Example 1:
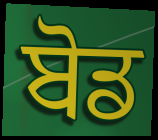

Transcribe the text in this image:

ਬੋਡ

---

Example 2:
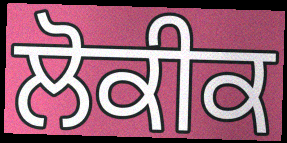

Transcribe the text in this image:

ਲੋਕੀਕ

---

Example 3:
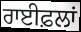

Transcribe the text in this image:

ਰਾਈਫ਼ਲਾਂ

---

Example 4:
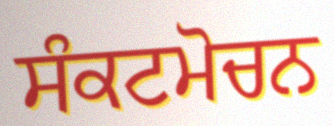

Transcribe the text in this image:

ਸੰਕਟਮੋਚਨ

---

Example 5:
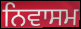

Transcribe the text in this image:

ਨਿਵਾਸਮ